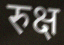
रुक्ष